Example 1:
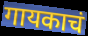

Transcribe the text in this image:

गायकाचं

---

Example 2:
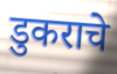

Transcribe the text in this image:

डुकराचे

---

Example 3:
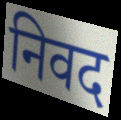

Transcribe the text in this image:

निवद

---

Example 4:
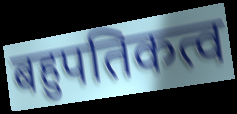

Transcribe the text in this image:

बहुपतिकत्व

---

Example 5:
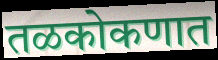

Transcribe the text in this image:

तळकोकणात